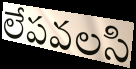
లేపవలసి